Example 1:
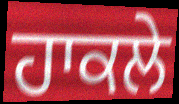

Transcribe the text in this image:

ਹਾਕਲੇ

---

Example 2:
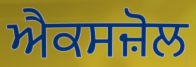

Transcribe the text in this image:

ਐਕਸਜ਼ੋਲ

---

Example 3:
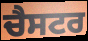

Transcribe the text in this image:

ਚੈਸਟਰ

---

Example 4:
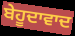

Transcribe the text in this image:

ਬੇਹੂਦਾਵਾਦ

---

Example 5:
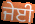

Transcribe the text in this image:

ਜੇਈ